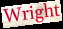
Wright